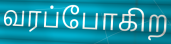
வரப்போகிற